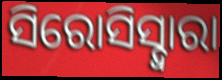
ସିରୋସିସ୍ଦ୍ୱାରା